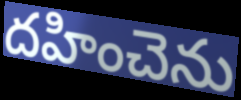
దహించెను